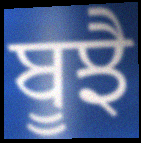
ਬੂਝੈ